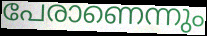
പേരാണെന്നും